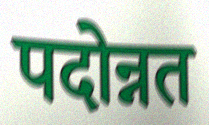
पदोन्नत